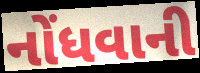
નોંધવાની